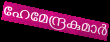
ഹേമേന്ദ്രകുമാർ